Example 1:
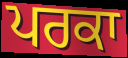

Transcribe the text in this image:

ਪਰਕਾ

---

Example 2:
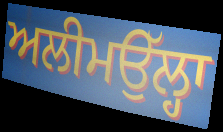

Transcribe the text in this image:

ਅਲੀਮਉੱਲ੍ਹਾ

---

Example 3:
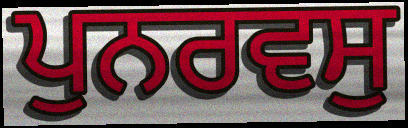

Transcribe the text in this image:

ਪੁਨਰਵਸੁ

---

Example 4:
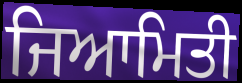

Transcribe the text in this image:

ਜਿਆਮਿਤੀ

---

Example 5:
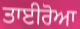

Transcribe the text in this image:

ਤਾਈਰੋਆ